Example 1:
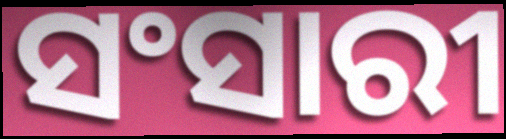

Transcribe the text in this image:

ସଂସାରୀ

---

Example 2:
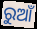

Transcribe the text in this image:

ରୁଆଁ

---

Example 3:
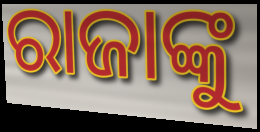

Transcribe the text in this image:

ରାଜାଙ୍କୁ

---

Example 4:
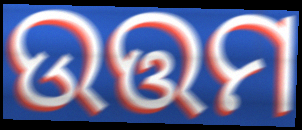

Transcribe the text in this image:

ଉତ୍ତମ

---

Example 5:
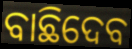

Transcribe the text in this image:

ବାଛିଦେବ